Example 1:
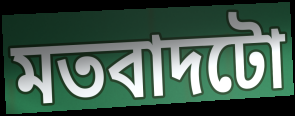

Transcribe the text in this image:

মতবাদটো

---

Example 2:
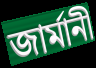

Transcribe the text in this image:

জাৰ্মানী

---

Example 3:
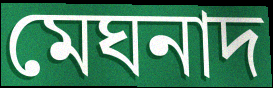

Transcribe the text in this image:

মেঘনাদ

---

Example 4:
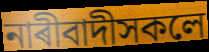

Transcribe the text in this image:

নাৰীবাদীসকলে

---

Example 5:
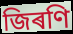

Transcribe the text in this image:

জিৰণি